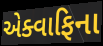
એક્વાફિના